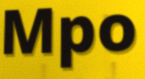
Mpo